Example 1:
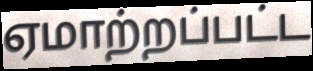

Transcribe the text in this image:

ஏமாற்றப்பட்ட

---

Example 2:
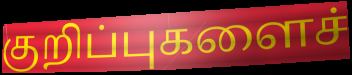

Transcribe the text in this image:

குறிப்புகளைச்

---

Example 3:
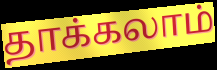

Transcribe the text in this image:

தாக்கலாம்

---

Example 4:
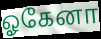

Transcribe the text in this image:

ஓகேனா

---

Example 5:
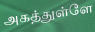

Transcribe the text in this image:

அகத்துள்ளே